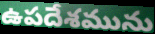
ఉపదేశమును